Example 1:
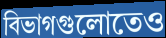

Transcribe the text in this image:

বিভাগগুলোতেও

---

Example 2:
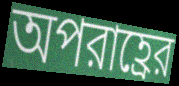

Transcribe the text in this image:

অপরাহ্রের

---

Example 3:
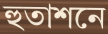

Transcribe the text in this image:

হুতাশনে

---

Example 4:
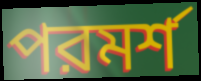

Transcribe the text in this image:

পরমর্শ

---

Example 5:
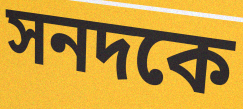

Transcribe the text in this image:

সনদকে